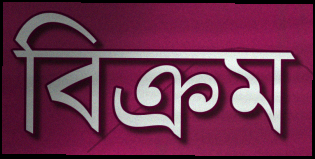
বিক্ৰম